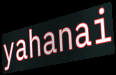
yahanai